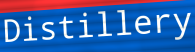
Distillery